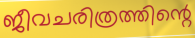
ജീവചരിത്രത്തിന്റെ